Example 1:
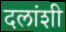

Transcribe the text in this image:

दलांशी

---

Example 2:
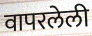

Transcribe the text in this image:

वापरलेली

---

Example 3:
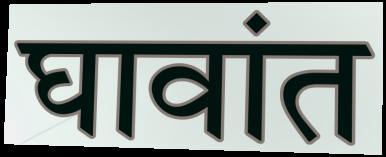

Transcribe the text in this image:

घावांत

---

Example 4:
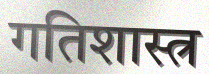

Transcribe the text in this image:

गतिशास्त्र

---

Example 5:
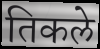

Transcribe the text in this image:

तिकले